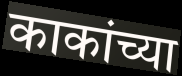
काकांच्या